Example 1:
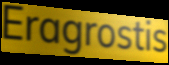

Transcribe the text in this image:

Eragrostis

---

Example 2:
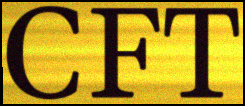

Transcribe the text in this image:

CFT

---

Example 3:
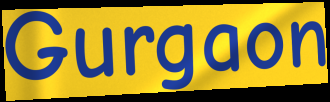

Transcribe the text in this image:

Gurgaon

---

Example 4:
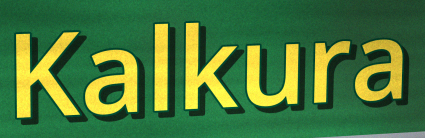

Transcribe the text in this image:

Kalkura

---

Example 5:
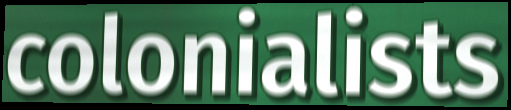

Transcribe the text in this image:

colonialists